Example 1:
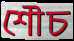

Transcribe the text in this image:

শৌচ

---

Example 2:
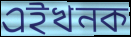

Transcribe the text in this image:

এইখনক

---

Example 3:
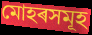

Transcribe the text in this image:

মোহৰসমূহ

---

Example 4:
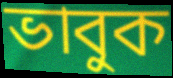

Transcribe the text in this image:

ভাবুক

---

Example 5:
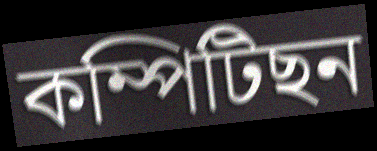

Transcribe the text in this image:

কম্পিটিছন